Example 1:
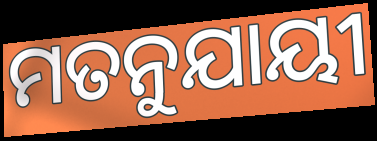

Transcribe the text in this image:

ମତନୁଯାୟୀ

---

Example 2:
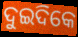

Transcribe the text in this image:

ଦୁଇଦିକେ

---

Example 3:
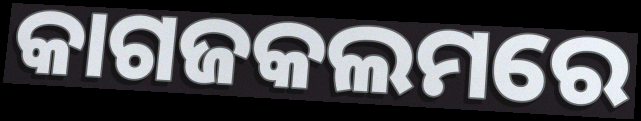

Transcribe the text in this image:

କାଗଜକଲମରେ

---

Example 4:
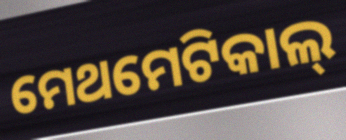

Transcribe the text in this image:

ମେଥମେଟିକାଲ୍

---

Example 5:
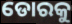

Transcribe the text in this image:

ଡୋରକୁ